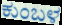
ಕುಂಬಳ